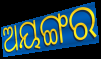
ଅୟଙ୍ଗର